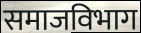
समाजविभाग